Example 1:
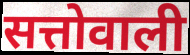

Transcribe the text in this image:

सत्तोवाली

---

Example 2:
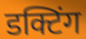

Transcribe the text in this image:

डक्टिंग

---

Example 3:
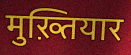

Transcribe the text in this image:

मुख़्तियार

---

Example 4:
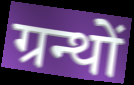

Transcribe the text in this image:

ग्रन्थों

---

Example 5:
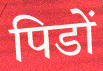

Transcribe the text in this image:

पिडों